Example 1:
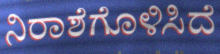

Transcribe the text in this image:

ನಿರಾಶೆಗೊಳಿಸಿದೆ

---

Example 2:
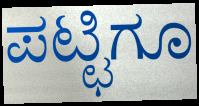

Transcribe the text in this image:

ಪಟ್ಟಿಗೂ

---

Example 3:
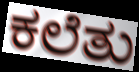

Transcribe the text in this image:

ಕಲೆತು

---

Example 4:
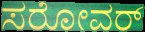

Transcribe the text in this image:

ಸರೋವರ್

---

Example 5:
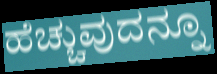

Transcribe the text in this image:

ಹೆಚ್ಚುವುದನ್ನೂ